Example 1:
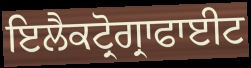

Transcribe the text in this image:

ਇਲੈਕਟ੍ਰੋਗ੍ਰਾਫਾਈਟ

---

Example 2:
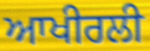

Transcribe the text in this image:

ਆਖੀਰਲੀ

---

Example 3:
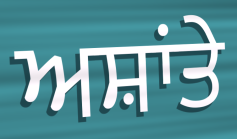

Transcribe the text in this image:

ਅਸ਼ਾਂਤੇ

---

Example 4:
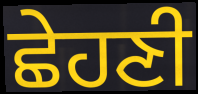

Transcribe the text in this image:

ਛੇਹਣੀ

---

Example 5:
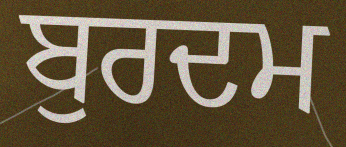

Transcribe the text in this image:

ਬੁਰਦਮ